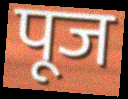
पूज